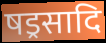
षड्रसादि